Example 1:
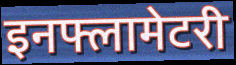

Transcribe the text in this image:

इनफ्लामेटरी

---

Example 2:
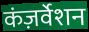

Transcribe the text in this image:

कंज़र्वेशन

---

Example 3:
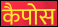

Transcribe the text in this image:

कैपोस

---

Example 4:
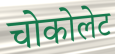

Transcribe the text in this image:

चोकोलेट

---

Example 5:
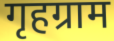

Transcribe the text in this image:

गृहग्राम